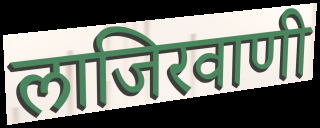
लाजिरवाणी